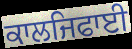
ਕਾਲਜਿਫਾਈ